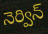
నెర్విన్